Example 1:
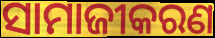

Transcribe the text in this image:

ସାମାଜୀକରଣ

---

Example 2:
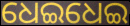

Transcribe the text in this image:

ଧେଇଧେଇ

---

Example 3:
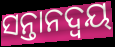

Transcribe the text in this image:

ସନ୍ତାନଦ୍ୱୟ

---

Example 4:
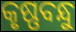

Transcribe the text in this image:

କୃଷ୍ଣବନ୍ଧୁ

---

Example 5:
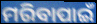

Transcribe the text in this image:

ମରିବାପାଇଁ